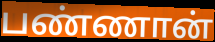
பண்ணான்